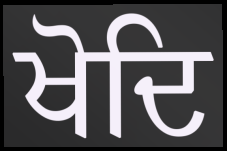
ਖੋਦਿ